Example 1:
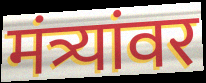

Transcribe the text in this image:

मंत्र्यांवर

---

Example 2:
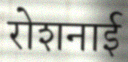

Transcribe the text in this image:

रोशनाई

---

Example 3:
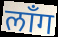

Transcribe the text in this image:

लाँग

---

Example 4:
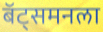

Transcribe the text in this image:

बॅट्समनला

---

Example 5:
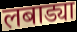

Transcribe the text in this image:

लबाड्या